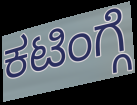
ಕಟಿಂಗ್ಗೆ